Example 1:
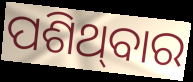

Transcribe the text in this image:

ପଶିଥ୍‌ବାର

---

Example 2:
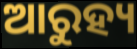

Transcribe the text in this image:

ଆରୁହ୍ୟ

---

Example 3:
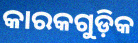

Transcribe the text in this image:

କାରକଗୁଡ଼ିକ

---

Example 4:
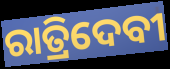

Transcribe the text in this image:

ରାତ୍ରିଦେବୀ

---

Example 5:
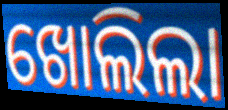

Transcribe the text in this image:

ଖୋଲିଲା